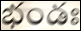
భండః